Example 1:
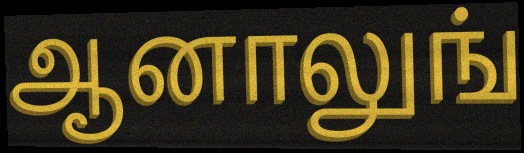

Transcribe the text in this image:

ஆனாலுங்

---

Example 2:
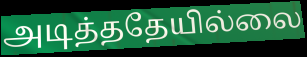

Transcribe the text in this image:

அடித்ததேயில்லை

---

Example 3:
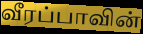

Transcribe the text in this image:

வீரப்பாவின்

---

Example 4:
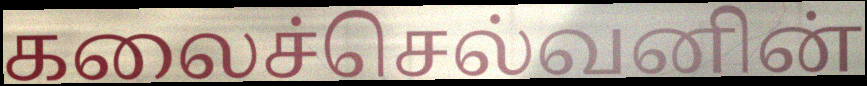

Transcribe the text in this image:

கலைச்செல்வனின்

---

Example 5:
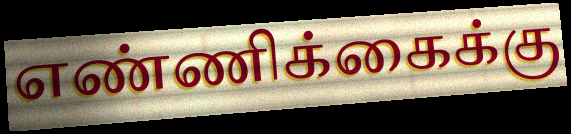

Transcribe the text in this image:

எண்ணிக்கைக்கு